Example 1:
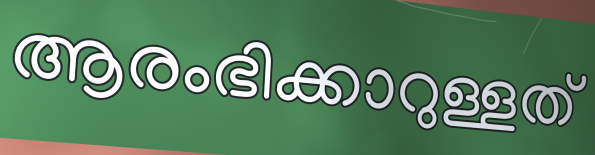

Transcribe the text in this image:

ആരംഭിക്കാറുള്ളത്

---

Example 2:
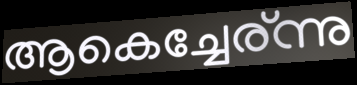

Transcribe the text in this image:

ആകെച്ചേര്ന്നു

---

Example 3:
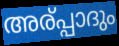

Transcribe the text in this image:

അര്പ്പാദും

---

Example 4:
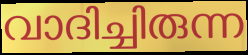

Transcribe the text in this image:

വാദിച്ചിരുന്ന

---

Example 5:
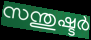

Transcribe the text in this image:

സന്തുഷ്ടർ